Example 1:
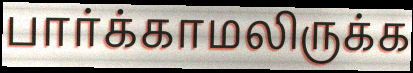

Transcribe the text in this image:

பார்க்காமலிருக்க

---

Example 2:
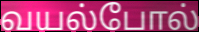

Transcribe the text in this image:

வயல்போல்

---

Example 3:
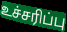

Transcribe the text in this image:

உச்சரிப்பு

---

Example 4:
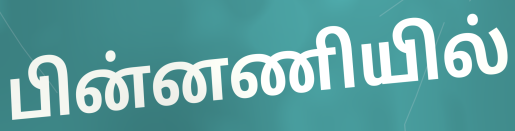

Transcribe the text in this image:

பின்னணியில்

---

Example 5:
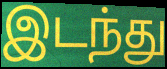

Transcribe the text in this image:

இடந்து